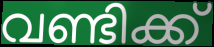
വണ്ടിക്ക്